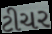
ટીચર